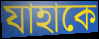
যাহাকে